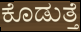
ಕೊಡುತ್ತೆ